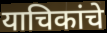
याचिकांचे